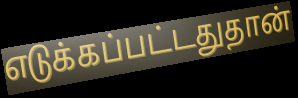
எடுக்கப்பட்டதுதான்